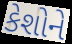
કેશોને